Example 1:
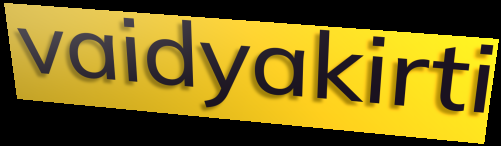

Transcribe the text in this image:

vaidyakirti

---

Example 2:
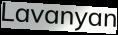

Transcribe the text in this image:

Lavanyan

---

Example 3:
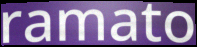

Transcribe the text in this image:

ramato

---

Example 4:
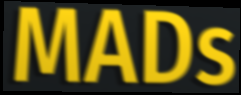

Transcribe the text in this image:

MADs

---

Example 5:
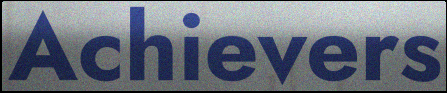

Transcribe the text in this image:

Achievers